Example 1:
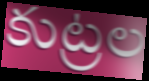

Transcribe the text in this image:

కుట్రల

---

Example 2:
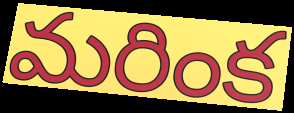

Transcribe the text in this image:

మరింక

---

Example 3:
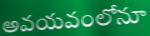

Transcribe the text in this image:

అవయవంలోనూ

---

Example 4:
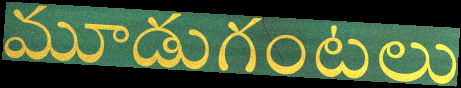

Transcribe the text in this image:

మూడుగంటలు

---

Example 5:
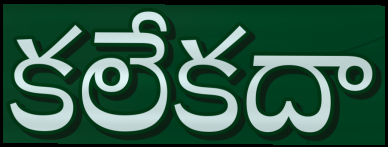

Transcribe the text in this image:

కలేకదా